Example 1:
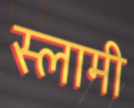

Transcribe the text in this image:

स्लामी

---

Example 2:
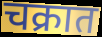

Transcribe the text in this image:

चक्रात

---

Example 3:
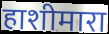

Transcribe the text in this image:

हाशीमारा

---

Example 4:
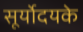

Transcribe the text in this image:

सूर्योदयके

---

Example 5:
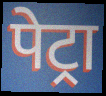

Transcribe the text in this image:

पेट्रा